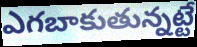
ఎగబాకుతున్నట్టే